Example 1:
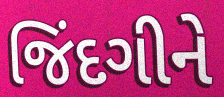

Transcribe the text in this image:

જિંદગીને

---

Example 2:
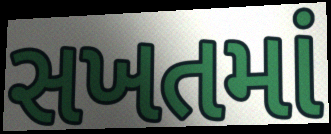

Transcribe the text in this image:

સખતમાં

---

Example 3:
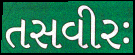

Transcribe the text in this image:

તસવીરઃ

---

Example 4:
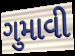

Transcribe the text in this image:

ગુમાવી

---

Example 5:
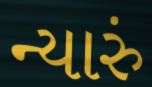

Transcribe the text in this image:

ન્યારું